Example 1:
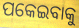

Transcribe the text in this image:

ପକେଇବାକୁ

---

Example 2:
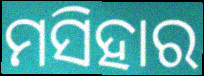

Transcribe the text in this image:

ମସିହାର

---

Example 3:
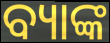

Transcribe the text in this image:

ବ୍ୟାଙ୍କ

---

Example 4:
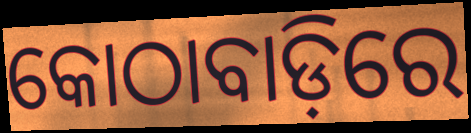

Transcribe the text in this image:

କୋଠାବାଡ଼ିରେ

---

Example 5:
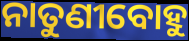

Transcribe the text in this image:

ନାତୁଣୀବୋହୁ